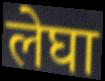
लेघा